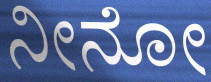
ನೀನೋ